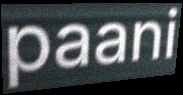
paani